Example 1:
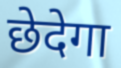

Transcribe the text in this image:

छेदेगा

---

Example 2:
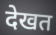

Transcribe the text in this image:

देखत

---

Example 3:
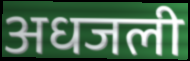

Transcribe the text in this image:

अधजली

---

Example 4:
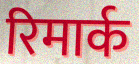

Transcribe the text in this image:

रिमार्क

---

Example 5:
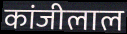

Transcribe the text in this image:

कांजीलाल